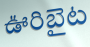
ఊరిబైట